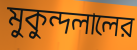
মুকুন্দলালের